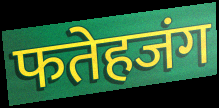
फतेहजंग